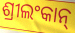
ଶ୍ରୀଲଂକାନ୍